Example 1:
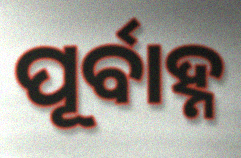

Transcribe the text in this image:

ପୂର୍ବାହ୍ନ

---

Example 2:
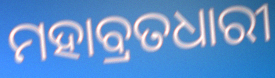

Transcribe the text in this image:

ମହାବ୍ରତଧାରୀ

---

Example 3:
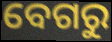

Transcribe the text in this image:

ବେଗରୁ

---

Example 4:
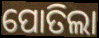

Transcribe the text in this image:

ପୋତିଲା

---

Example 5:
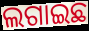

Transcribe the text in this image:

ଲଗାଇଛ